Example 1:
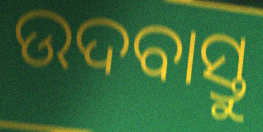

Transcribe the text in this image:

ଉଦବାସ୍ତୁ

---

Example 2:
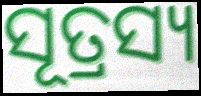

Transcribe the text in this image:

ସୂତ୍ରସ୍ୟ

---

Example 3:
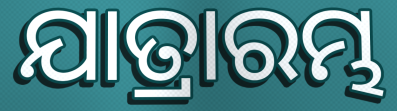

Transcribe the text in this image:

ଯାତ୍ରାରମ୍ଭ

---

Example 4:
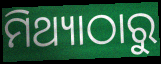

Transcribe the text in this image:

ମିଥ୍ୟାଠାରୁ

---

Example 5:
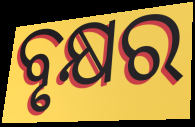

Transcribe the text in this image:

ବୃକ୍ଷର